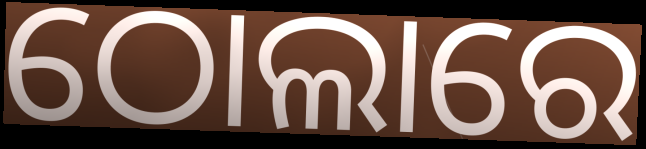
ଠୋଲାରେ